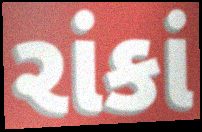
રાંકાં